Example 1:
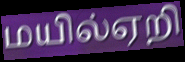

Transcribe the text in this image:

மயில்ஏறி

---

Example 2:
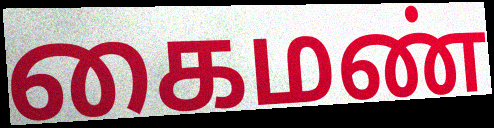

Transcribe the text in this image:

கைமண்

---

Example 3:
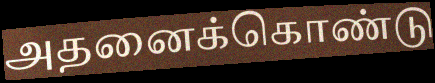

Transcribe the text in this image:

அதனைக்கொண்டு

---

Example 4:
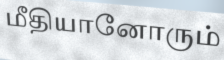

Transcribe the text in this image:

மீதியானோரும்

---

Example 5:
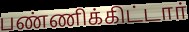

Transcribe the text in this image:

பண்ணிக்கிட்டார்